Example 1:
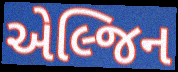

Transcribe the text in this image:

એલ્જિન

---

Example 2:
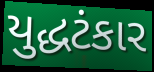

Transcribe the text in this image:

યુદ્ધટંકાર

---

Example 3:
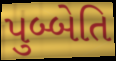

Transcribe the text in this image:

પુબ્બેતિ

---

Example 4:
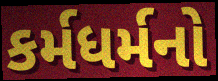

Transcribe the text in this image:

કર્મધર્મનો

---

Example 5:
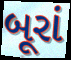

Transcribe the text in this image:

બૂરાં